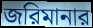
জরিমানার